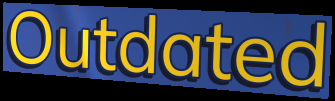
Outdated